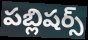
పబ్లిషర్స్